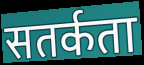
सतर्कता